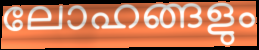
ലോഹങ്ങളും